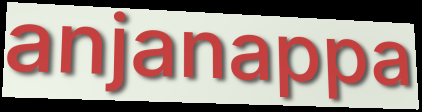
anjanappa